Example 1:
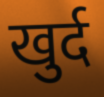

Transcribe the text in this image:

खुर्द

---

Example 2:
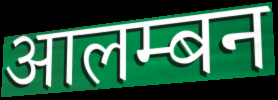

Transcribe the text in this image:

आलम्बन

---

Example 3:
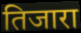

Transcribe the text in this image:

तिजारा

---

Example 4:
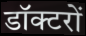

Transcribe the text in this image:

डॉक्टरों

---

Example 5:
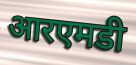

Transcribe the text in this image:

आरएमडी